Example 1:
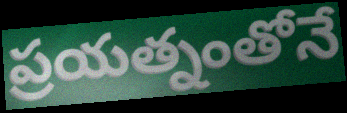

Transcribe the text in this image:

ప్రయత్నంతోనే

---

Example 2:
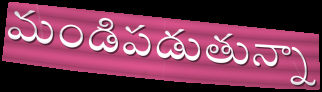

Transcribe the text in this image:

మండిపడుతున్నా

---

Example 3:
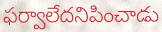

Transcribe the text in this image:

ఫర్వాలేదనిపించాడు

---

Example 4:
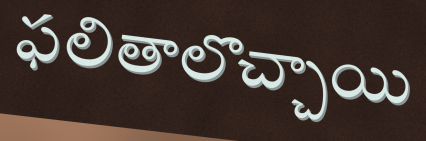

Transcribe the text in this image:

ఫలితాలొచ్చాయి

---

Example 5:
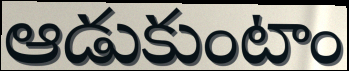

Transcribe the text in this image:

ఆడుకుంటాం